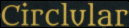
Circlular